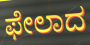
ಫೇಲಾದ